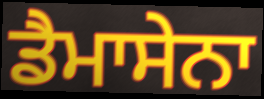
ਡੈਮਾਸੇਨਾ